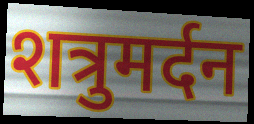
शत्रुमर्दन